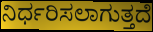
ನಿರ್ಧರಿಸಲಾಗುತ್ತದೆ